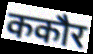
ककौर